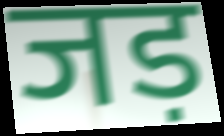
जड़